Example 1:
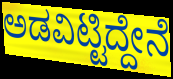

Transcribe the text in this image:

ಅಡವಿಟ್ಟಿದ್ದೇನೆ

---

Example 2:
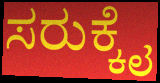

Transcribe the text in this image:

ಸರುಕ್ಕೈ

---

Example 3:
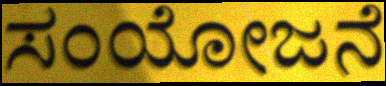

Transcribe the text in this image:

ಸಂಯೋಜನೆ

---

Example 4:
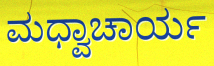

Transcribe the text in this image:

ಮಧ್ವಾಚಾರ್ಯ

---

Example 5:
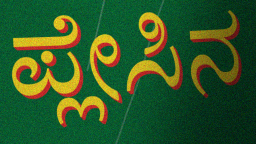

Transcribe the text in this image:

ಪ್ಲೇಸಿನ